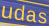
udas